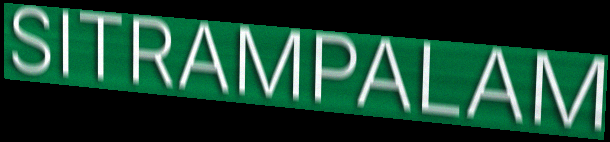
SITRAMPALAM